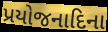
પ્રયોજનાદિના